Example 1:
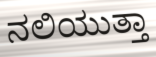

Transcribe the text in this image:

ನಲಿಯುತ್ತಾ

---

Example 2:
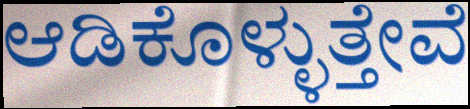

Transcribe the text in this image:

ಆಡಿಕೊಳ್ಳುತ್ತೇವೆ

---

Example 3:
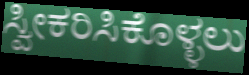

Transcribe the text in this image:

ಸ್ವೀಕರಿಸಿಕೊಳ್ಳಲು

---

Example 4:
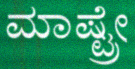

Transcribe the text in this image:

ಮಾಷ್ಟ್ರೇ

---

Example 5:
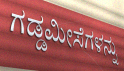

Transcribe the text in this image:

ಗಡ್ಡಮೀಸೆಗಳನ್ನು